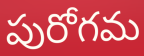
పురోగమ